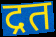
द्रत